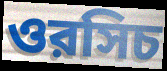
ওরসিচ